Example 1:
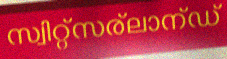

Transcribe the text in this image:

സ്വിറ്റ്സര്ലാന്ഡ്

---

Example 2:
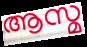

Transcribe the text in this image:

ആസ്മ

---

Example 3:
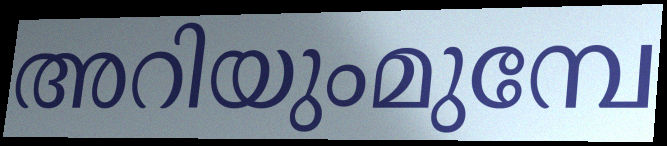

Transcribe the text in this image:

അറിയുംമുമ്പേ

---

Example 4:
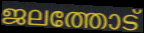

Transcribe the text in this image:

ജലത്തോട്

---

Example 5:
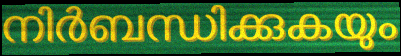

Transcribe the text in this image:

നിർബന്ധിക്കുകയും